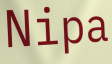
Nipa